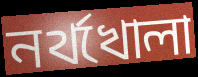
নর্থখোলা